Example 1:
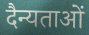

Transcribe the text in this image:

दैन्यताओं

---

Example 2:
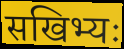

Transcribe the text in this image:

सखिभ्यः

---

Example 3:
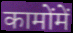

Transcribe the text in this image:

कामोंमें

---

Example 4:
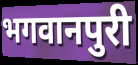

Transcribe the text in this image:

भगवानपुरी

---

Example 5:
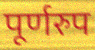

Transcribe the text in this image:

पूर्णरुप